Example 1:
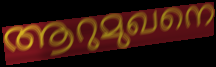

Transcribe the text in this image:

ആറുമുഖനെ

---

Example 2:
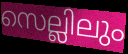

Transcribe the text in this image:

സെല്ലിലും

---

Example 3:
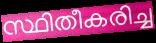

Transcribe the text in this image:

സ്ഥിതീകരിച്ച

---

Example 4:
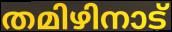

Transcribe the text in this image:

തമിഴിനാട്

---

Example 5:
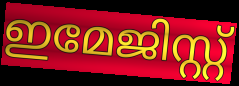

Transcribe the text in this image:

ഇമേജിസ്റ്റ്